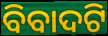
ବିବାଦଟି